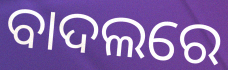
ବାଦଲରେ